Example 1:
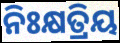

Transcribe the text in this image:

ନିଃକ୍ଷତ୍ରିୟ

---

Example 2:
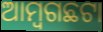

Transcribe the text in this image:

ଆମ୍ବଗଛଟା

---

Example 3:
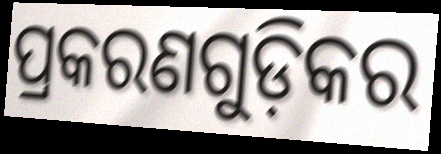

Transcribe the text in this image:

ପ୍ରକରଣଗୁଡ଼ିକର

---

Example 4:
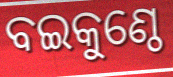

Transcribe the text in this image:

ବଇକୁଣ୍ଠେ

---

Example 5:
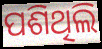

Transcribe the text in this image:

ପଶିଥିଲି